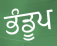
ਭੰਡੂਪ